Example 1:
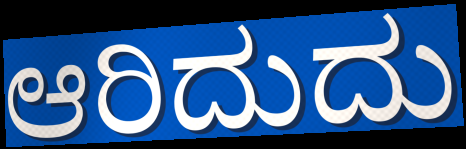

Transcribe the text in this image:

ಆರಿದುದು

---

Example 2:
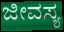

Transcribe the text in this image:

ಜೀವಸ್ಯ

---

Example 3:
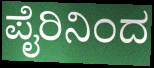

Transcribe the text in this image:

ಪೈರಿನಿಂದ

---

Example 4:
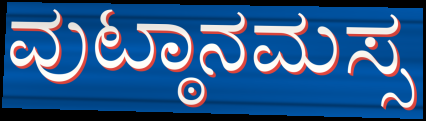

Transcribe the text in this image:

ವುಟ್ಠಾನಮಸ್ಸ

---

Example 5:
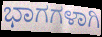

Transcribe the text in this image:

ಭಾಗಗಳಾಗಿ